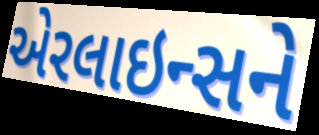
એરલાઇન્સને